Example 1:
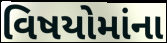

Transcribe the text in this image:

વિષયોમાંના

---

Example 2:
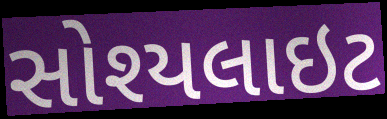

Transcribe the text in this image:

સોશ્યલાઇટ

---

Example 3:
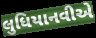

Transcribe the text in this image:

લુધિયાનવીએ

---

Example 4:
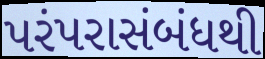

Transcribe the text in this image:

પરંપરાસંબંધથી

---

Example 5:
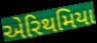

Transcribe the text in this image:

એરિથમિયા